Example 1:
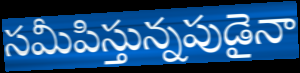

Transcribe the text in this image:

సమీపిస్తున్నపుడైనా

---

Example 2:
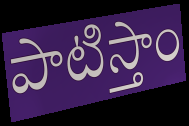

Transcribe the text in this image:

పాటిస్తాం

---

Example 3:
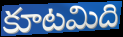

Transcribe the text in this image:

కూటమిది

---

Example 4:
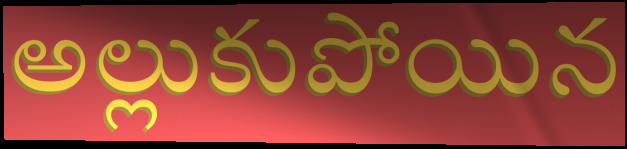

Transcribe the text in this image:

అల్లుకుపోయిన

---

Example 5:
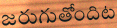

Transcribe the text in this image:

జరుగుతోందిట